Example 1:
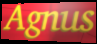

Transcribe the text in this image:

Agnus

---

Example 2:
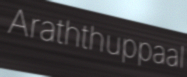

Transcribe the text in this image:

Araththuppaal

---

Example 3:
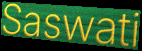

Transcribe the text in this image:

Saswati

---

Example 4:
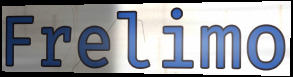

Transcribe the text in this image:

Frelimo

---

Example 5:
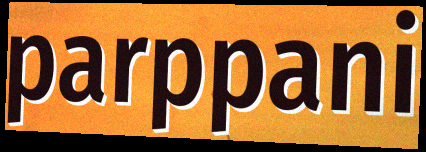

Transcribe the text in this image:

parppani